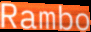
Rambo